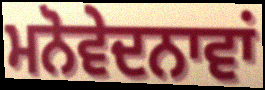
ਮਨੋਵੇਦਨਾਵਾਂ